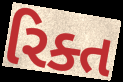
રિક્ત